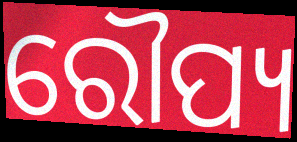
ରୌପ୍ୟ